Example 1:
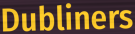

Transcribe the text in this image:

Dubliners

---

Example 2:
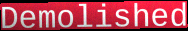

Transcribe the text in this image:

Demolished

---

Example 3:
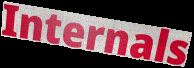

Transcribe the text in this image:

Internals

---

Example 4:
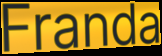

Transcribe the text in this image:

Franda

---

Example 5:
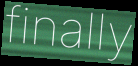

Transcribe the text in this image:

finally